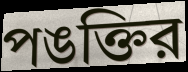
পঙক্তির